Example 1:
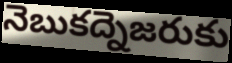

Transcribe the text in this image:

నెబుకద్నెజరుకు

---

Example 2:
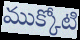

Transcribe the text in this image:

ముక్కోటి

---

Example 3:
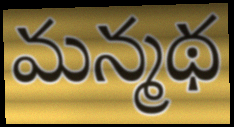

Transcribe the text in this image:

మన్మథ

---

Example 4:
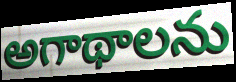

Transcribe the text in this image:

అగాథాలను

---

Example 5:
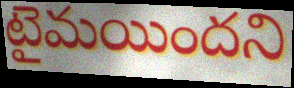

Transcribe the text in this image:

టైమయిందని